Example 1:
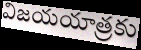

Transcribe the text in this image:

విజయయాత్రకు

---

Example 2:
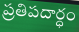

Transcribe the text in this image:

ప్రతిపదార్ధం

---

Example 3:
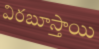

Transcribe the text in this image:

విరబూస్తాయి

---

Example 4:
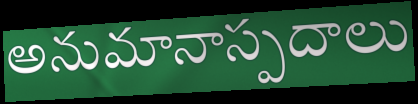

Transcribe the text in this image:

అనుమానాస్పదాలు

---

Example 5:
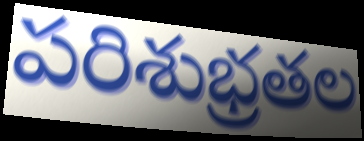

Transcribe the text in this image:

పరిశుభ్రతల